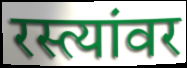
रस्त्यांवर